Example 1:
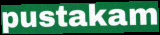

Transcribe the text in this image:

pustakam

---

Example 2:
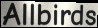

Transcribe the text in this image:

Allbirds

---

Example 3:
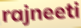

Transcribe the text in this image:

rajneeti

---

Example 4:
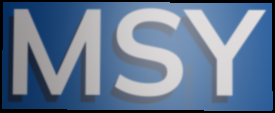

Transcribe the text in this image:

MSY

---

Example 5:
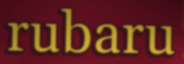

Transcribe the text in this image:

rubaru